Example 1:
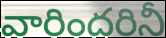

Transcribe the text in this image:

వారిందరినీ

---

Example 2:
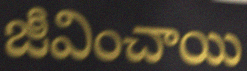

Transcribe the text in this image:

జీవించాయి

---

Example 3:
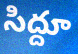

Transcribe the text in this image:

సిద్దూ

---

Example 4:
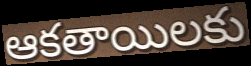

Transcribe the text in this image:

ఆకతాయిలకు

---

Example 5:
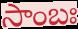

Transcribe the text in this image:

సాంబః